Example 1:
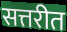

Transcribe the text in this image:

सत्तरीत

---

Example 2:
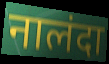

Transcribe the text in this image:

नालंदा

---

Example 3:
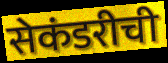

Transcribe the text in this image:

सेकंडरीची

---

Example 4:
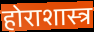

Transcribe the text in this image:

होराशास्त्र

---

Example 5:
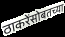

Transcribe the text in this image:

ठाकरेंसोबतच्या